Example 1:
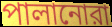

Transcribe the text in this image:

পালানোরা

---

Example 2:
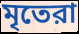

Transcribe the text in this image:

মৃতেরা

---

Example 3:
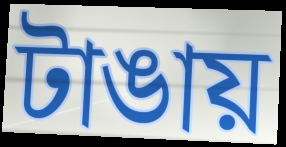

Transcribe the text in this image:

টাঙায়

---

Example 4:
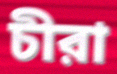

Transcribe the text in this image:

চীরা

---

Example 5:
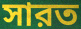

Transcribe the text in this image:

সারত